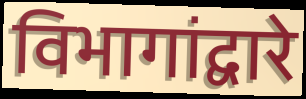
विभागांद्वारे